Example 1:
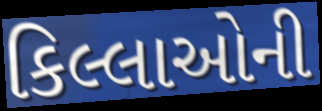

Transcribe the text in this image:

કિલ્લાઓની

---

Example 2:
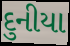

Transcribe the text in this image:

દુનીયા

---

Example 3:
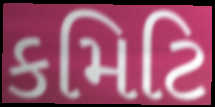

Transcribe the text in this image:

કમિટિ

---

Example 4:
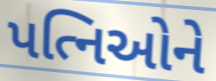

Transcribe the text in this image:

પત્નિઓને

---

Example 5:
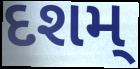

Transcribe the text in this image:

દશમ્